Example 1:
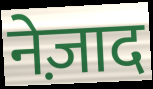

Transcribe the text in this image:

नेज़ाद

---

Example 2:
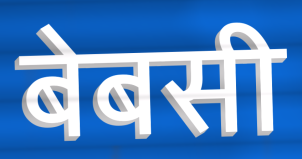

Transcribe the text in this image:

बेबसी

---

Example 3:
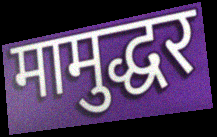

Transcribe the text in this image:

मामुद्धर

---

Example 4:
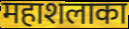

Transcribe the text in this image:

महाशलाका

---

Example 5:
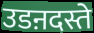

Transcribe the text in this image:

उडऩदस्ते